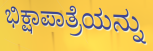
ಭಿಕ್ಷಾಪಾತ್ರೆಯನ್ನು